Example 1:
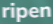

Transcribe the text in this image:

ripen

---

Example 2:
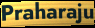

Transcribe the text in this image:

Praharaju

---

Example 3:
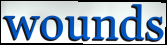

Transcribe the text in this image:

wounds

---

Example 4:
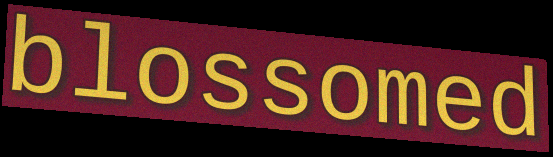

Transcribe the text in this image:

blossomed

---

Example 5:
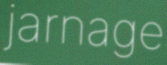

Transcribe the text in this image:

jarnage